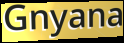
Gnyana